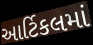
આર્ટિકલમાં